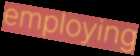
employing